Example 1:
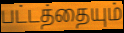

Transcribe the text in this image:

பட்டத்தையும்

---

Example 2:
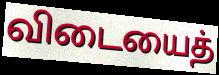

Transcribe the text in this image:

விடையைத்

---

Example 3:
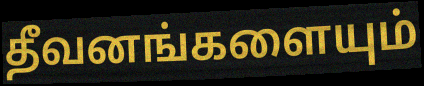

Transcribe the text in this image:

தீவனங்களையும்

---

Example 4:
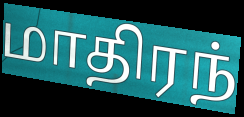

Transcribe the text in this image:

மாதிரந்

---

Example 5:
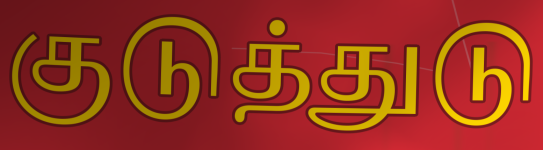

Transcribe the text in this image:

குடுத்துடு